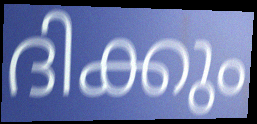
ദിക്കും